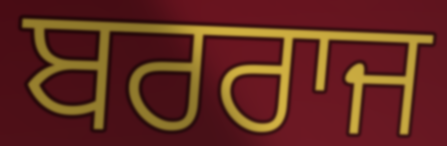
ਬਰਰਾਜ